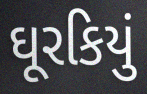
ઘૂરકિયું